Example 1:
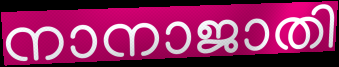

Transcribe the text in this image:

നാനാജാതി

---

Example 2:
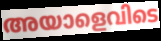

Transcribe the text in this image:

അയാളെവിടെ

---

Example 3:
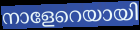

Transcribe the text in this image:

നാളേറെയായി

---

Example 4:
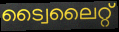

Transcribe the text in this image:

ട്വൈലൈറ്റ്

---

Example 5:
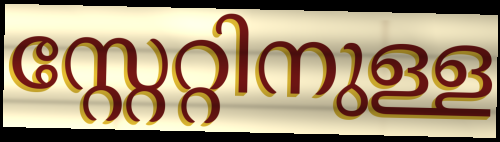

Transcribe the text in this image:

സ്റ്റേറ്റിനുള്ള